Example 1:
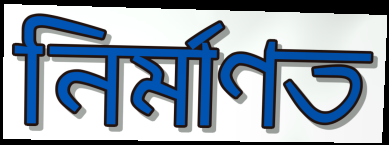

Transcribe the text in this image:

নিৰ্মাণত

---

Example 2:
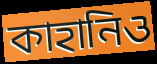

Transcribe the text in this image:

কাহানিও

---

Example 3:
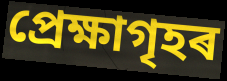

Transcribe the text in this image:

প্ৰেক্ষাগৃহৰ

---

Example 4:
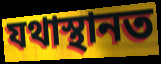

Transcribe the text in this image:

যথাস্থানত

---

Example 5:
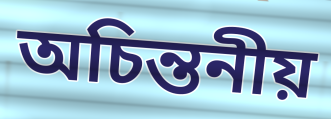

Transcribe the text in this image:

অচিন্তনীয়